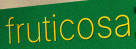
fruticosa